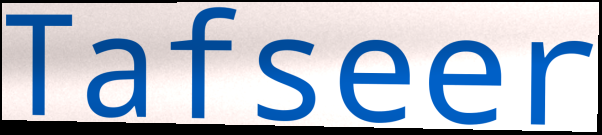
Tafseer